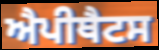
ਐਪੀਥੈਟਸ